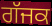
ਗੱਜਕ